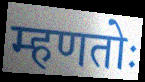
म्हणतोः